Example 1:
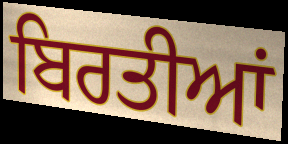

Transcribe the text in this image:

ਬਿਰਤੀਆਂ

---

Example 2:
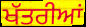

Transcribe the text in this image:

ਖੱਤਰੀਆਂ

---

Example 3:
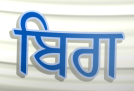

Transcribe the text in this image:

ਬਿਗ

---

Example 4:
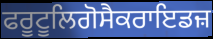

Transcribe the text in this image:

ਫਰੂਟੂਲਿਗੋਸੈਕਰਾਇਡਜ਼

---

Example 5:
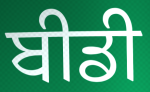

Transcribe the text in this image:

ਬੀਡੀ